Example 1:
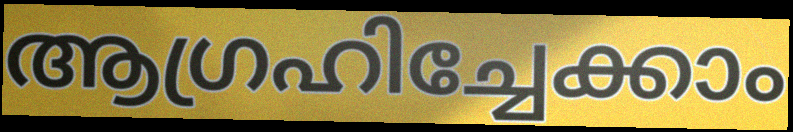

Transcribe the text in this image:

ആഗ്രഹിച്ചേക്കാം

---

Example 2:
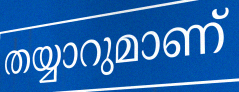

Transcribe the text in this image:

തയ്യാറുമാണ്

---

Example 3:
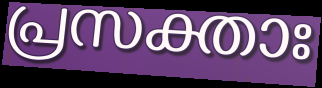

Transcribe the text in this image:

പ്രസക്താഃ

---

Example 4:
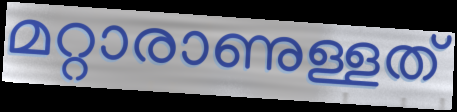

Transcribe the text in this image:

മറ്റാരാണുള്ളത്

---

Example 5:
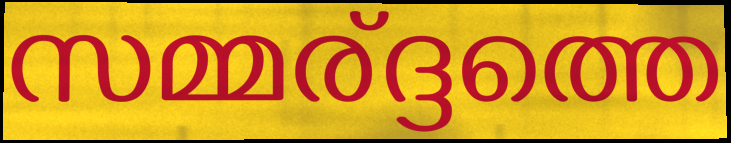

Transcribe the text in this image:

സമ്മര്ദ്ദത്തെ